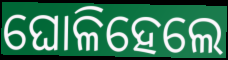
ଘୋଳିହେଲେ